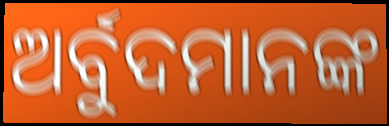
ଅର୍ବୁଦମାନଙ୍କ